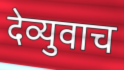
देव्युवाच